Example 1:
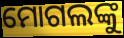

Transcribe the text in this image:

ମୋଗଲଙ୍କୁ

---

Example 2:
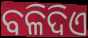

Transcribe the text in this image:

ବଳିଦିଏ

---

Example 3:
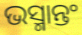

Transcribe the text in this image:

ଭସ୍ମାନ୍ତଂ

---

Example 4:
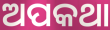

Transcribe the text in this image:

ଅପକଥା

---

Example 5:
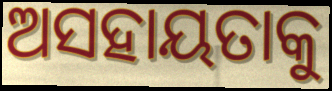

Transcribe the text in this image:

ଅସହାୟତାକୁ